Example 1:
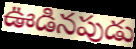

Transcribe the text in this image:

ఊడినపుడు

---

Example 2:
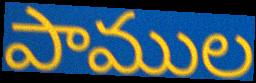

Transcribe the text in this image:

పాముల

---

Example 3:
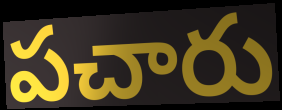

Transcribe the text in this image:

పచారు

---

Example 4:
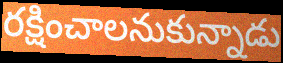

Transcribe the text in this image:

రక్షించాలనుకున్నాడు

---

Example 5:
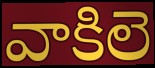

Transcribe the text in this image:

వాకిలె